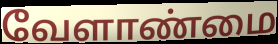
வேளாண்மை